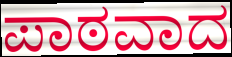
ಪಾಠವಾದ